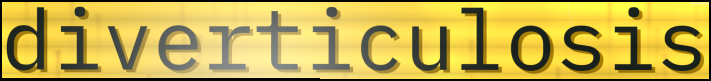
diverticulosis